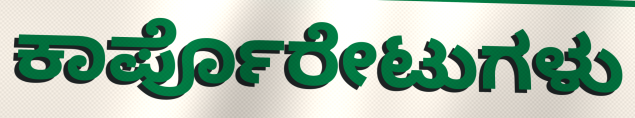
ಕಾರ್ಪೊರೇಟುಗಳು